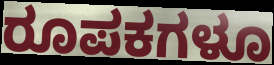
ರೂಪಕಗಳೂ